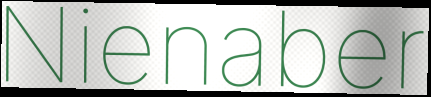
Nienaber